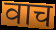
वाच